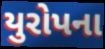
યુરોપના